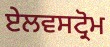
ਏਲਵਸਟ੍ਰੋਮ